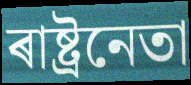
ৰাষ্ট্ৰনেতা